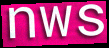
nws